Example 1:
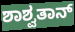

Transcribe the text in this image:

ಶಾಶ್ವತಾನ್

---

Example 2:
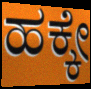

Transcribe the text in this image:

ಹಕ್ಕೇ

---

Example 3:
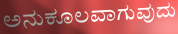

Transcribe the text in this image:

ಅನುಕೂಲವಾಗುವುದು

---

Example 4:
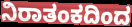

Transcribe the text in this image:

ನಿರಾತಂಕದಿಂದ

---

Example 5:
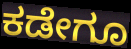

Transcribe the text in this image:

ಕಡೇಗೂ